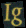
Ig